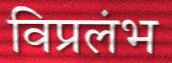
विप्रलंभ